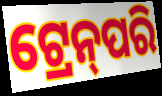
ଟ୍ରେନ୍‌ପରି